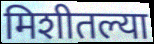
मिशीतल्या